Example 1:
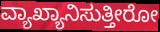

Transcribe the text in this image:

ವ್ಯಾಖ್ಯಾನಿಸುತ್ತೀರೋ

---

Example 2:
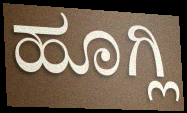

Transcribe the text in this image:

ಹೂಗ್ಲಿ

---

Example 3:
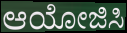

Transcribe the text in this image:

ಆಯೋಜಿಸಿ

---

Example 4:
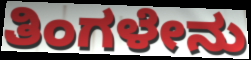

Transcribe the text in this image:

ತಿಂಗಳೇನು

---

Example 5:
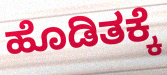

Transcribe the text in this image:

ಹೊಡಿತಕ್ಕೆ